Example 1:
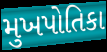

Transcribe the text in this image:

મુખપોતિકા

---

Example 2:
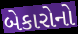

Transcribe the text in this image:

બેકારોનો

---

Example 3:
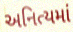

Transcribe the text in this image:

અનિત્યમાં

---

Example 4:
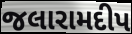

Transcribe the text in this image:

જલારામદીપ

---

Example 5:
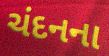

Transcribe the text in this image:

ચંદનના